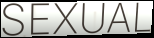
SEXUAL